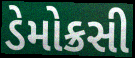
ડેમોક્રસી